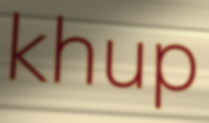
khup